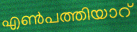
എൺപത്തിയാറ്